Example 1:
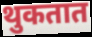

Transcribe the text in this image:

थुकतात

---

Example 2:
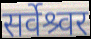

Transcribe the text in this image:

सर्वेश्र्वर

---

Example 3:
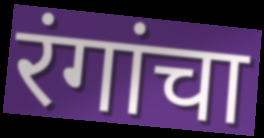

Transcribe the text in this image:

रंगांचा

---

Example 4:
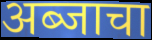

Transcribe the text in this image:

अब्जाचा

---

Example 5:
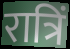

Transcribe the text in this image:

रात्रिं